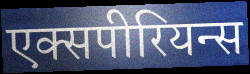
एक्सपीरियन्स